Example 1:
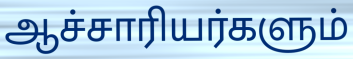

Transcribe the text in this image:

ஆச்சாரியர்களும்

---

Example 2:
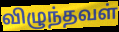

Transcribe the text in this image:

விழுந்தவள்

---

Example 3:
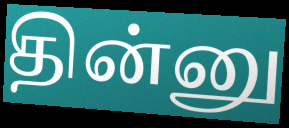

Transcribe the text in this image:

தின்னு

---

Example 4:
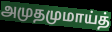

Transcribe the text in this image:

அமுதமுமாய்த்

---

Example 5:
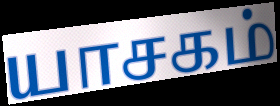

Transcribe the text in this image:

யாசகம்